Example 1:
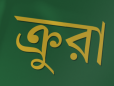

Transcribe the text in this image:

ক্রুরা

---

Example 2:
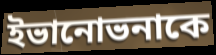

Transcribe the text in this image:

ইভানোভনাকে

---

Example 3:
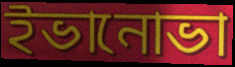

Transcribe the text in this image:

ইভানোভা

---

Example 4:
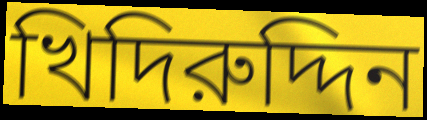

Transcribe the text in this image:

খিদিরুদ্দিন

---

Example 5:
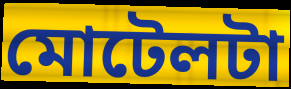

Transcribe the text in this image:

মোটেলটা